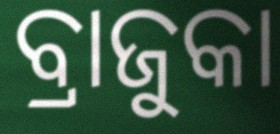
ବ୍ରାଜୁକା